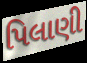
પિલાણી